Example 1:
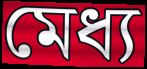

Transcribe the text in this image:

মেধ্য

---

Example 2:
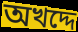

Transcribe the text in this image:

অখদ্দে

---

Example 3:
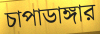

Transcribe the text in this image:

চাপাডাঙ্গার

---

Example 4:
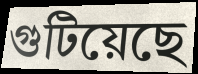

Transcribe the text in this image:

গুটিয়েছে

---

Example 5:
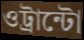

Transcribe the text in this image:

ওট্রান্টো